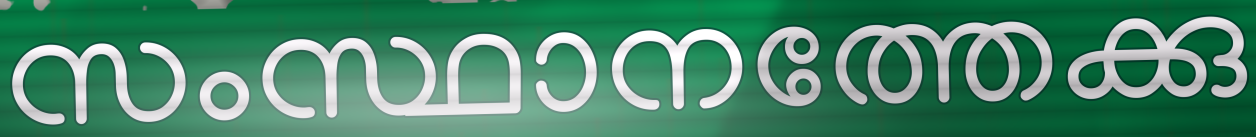
സംസ്ഥാനത്തേക്കു